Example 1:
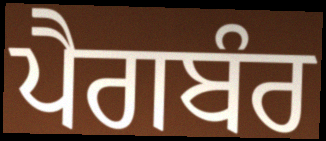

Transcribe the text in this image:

ਪੈਗਬੰਰ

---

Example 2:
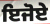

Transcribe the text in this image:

ਇਜੋਏ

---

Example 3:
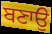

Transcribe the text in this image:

ਬਣਾਉ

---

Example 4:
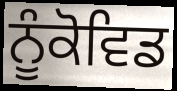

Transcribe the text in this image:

ਨੂੰਕੋਵਿਡ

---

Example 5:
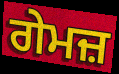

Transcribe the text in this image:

ਗੇਮਜ਼